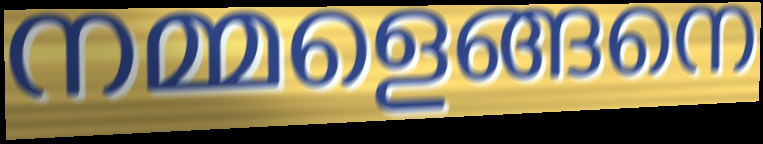
നമ്മളെങ്ങനെ